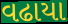
વઢાયા